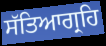
ਸੱਤਿਆਗ੍ਰਹਿ